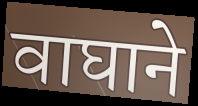
वाघाने